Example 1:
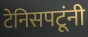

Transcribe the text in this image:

टेनिसपटूंनी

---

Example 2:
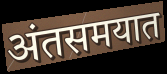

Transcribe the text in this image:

अंतसमयात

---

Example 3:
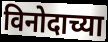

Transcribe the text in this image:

विनोदाच्या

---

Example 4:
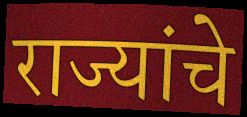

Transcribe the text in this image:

राज्यांचे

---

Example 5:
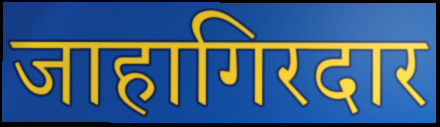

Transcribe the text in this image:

जाहागिरदार